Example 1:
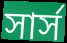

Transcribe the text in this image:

সার্স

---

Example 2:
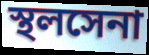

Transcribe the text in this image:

স্থলসেনা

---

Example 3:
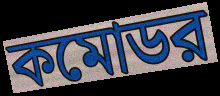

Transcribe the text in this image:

কমোডর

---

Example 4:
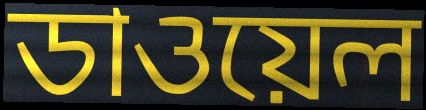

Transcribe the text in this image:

ডাওয়েল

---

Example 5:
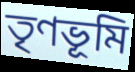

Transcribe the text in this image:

তৃণভূমি